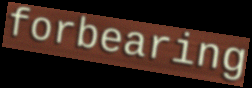
forbearing